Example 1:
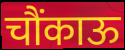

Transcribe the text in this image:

चौंकाऊ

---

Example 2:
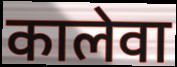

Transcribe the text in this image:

कालेवा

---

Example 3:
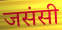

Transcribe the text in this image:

जसंसी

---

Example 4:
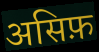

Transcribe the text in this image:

असिफ़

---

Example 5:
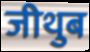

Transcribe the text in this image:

जीथुब